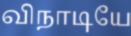
விநாடியே